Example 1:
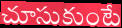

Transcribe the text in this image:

చూసుకుంటే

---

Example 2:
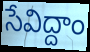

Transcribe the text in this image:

సేవిద్దాం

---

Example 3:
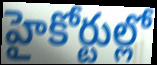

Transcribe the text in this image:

హైకోర్టుల్లో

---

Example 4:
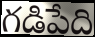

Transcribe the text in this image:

గడిపేది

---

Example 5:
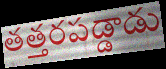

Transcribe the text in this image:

తత్తరపడ్డాడు